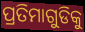
ପ୍ରତିମାଗୁଡିକୁ